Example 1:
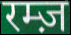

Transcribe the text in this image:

रम्ज़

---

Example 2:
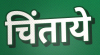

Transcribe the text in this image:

चिंताये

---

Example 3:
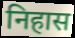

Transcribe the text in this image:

निहास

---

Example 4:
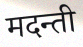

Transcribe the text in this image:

मदन्ती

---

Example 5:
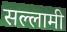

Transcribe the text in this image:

सल्लामी